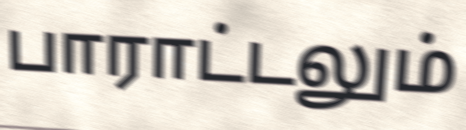
பாராட்டலும்